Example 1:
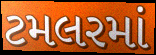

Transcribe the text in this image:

ટમલરમાં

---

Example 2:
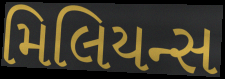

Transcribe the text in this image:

મિલિયન્સ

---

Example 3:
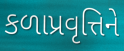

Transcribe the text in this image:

કળાપ્રવૃત્તિને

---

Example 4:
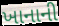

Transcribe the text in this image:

ખાનાની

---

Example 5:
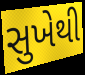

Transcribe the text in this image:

સુખેથી